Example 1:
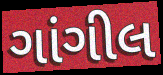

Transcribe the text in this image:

ગાંગીલ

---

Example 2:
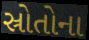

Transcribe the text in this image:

સ્રોતોના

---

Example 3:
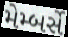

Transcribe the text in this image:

મેમ્બર્સે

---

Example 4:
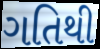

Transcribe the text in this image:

ગતિથી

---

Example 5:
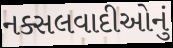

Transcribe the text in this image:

નક્સલવાદીઓનું